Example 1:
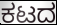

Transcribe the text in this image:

ಕಟದ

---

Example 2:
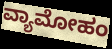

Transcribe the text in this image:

ವ್ಯಾಮೋಹಂ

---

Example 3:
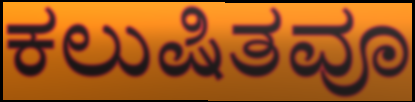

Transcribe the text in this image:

ಕಲುಷಿತವೂ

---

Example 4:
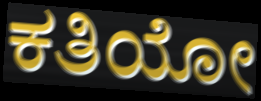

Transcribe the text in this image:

ಕತಿಯೋ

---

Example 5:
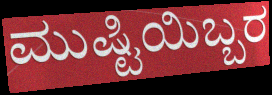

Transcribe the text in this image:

ಮುಷ್ಟಿಯಿಬ್ಬರ